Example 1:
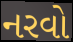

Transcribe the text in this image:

નરવો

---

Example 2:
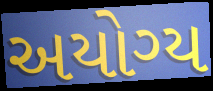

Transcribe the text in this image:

અયોગ્ય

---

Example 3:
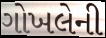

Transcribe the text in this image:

ગોખલેની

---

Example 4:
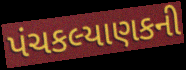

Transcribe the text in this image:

પંચકલ્યાણકની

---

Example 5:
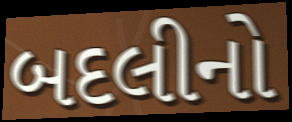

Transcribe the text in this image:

બદલીનો